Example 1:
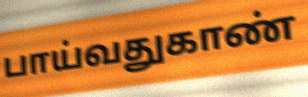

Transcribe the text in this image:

பாய்வதுகாண்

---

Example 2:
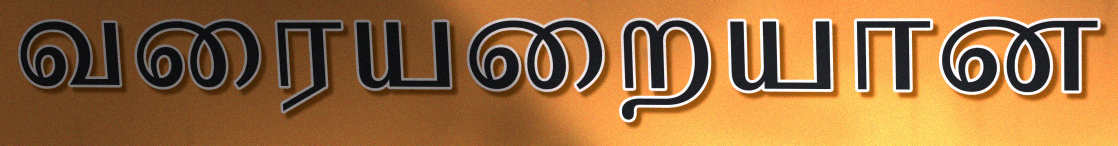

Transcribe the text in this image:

வரையறையான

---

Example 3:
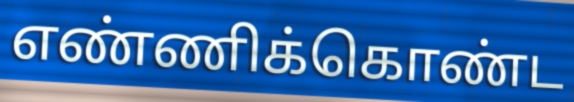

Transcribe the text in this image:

எண்ணிக்கொண்ட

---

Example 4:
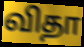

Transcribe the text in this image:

விதா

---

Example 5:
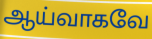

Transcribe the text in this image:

ஆய்வாகவே